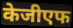
केजीएफ